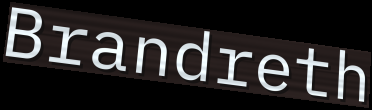
Brandreth